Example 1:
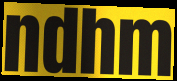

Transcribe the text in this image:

ndhm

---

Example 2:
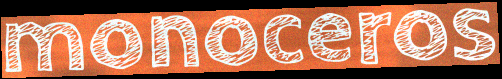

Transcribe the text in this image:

monoceros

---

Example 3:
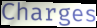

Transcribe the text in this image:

Charges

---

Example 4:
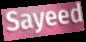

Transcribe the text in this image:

Sayeed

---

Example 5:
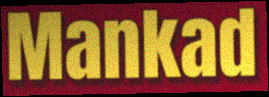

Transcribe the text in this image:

Mankad